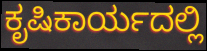
ಕೃಷಿಕಾರ್ಯದಲ್ಲಿ